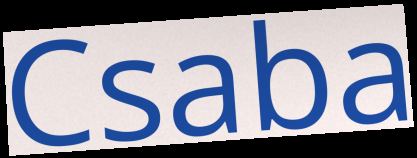
Csaba